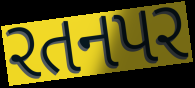
રતનપર